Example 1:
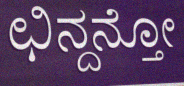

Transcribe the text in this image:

ಛಿನ್ದನ್ತೋ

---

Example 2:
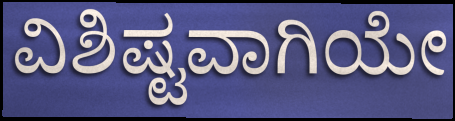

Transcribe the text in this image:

ವಿಶಿಷ್ಟವಾಗಿಯೇ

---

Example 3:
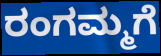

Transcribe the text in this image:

ರಂಗಮ್ಮಗೆ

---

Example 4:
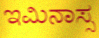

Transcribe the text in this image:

ಇಮಿನಾಸ್ಸ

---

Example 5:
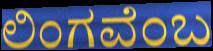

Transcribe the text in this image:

ಲಿಂಗವೆಂಬ